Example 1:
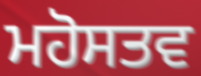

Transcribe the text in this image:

ਮਹੋਸਤਵ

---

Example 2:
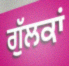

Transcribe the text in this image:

ਗੁੱਲਕਾਂ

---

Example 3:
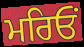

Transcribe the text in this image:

ਮਰਿਓਂ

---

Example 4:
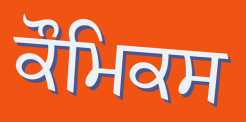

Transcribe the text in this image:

ਕੌਮਿਕਸ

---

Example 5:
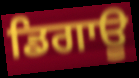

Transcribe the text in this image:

ਡਿਗਾਊ